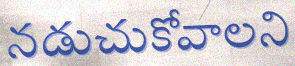
నడుచుకోవాలని